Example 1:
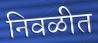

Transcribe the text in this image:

निवळीत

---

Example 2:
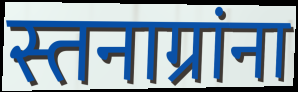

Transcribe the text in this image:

स्तनाग्रांना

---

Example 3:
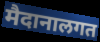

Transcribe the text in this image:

मैदानालगत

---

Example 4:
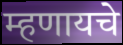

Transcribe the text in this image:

म्हणायचे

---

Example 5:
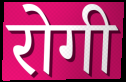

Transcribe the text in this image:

रोगी